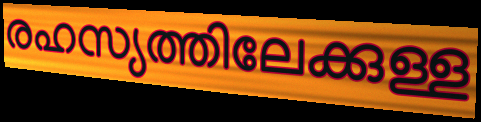
രഹസ്യത്തിലേക്കുള്ള